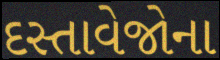
દસ્તાવેજોના